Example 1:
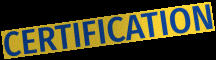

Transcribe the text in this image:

CERTIFICATION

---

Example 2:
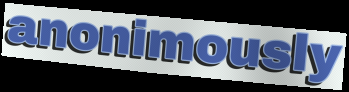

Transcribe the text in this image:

anonimously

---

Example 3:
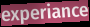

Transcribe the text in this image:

experiance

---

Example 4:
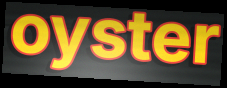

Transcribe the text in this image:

oyster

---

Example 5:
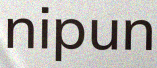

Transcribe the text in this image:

nipun